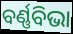
ବର୍ଣ୍ଣବିଭା